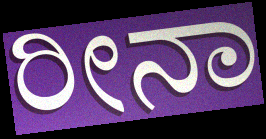
ರೀನಾ